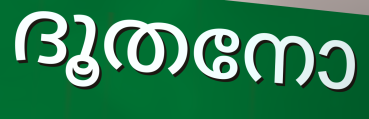
ദൂതനോ